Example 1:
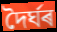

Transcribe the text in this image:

দৈৰ্ঘৰ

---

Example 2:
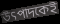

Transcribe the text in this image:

উৎপাদকেই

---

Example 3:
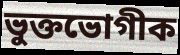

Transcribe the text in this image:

ভুক্তভোগীক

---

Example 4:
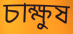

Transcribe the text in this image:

চাক্ষুষ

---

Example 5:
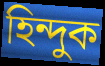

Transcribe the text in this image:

হিন্দুক